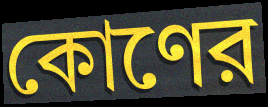
কোণের